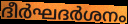
ദീർഘദർശനം